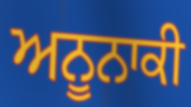
ਅਨੂਨਾਕੀ